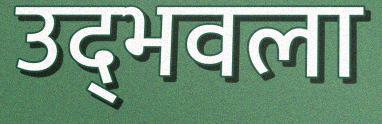
उद्‌भवला